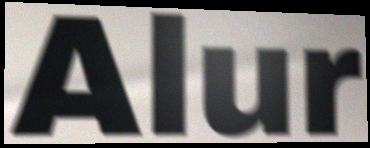
Alur